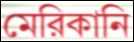
মেরিকানি